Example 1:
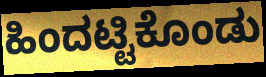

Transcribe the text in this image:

ಹಿಂದಟ್ಟಿಕೊಂಡು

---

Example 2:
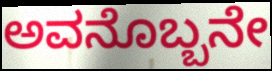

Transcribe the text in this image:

ಅವನೊಬ್ಬನೇ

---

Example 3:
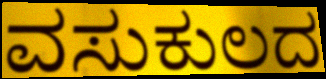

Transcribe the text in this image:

ವಸುಕುಲದ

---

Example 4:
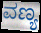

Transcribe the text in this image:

ವಣ್ಯ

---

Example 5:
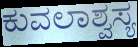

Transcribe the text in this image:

ಕುವಲಾಶ್ವಸ್ಯ